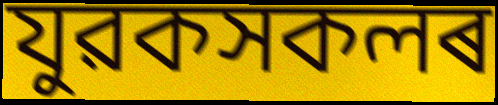
যুৱকসকলৰ